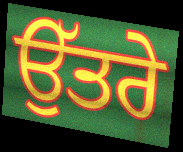
ਉੱਤਰੇ